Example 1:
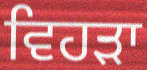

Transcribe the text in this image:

ਵਿਹੜਾ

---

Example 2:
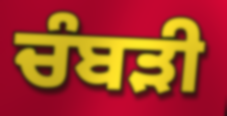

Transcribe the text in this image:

ਚੰਬੜੀ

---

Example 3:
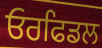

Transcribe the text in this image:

ਓਰਫਿਡਲ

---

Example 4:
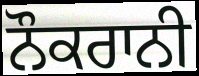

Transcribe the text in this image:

ਨੌਕਰਾਨੀ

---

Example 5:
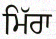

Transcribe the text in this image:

ਮਿੱਰਾ